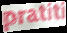
pratiti